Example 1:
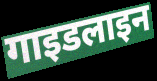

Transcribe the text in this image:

गाइडलाइन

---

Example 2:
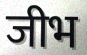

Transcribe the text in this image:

जीभ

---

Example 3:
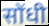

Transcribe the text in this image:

सोंधी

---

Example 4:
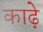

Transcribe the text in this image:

काढ़े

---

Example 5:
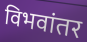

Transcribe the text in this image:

विभवांतर